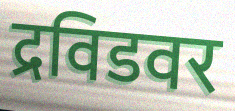
द्रविडवर